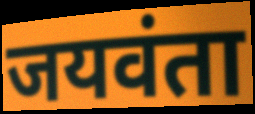
जयवंता